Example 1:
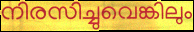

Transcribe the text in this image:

നിരസിച്ചുവെങ്കിലും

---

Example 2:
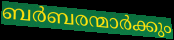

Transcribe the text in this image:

ബർബരന്മാർക്കും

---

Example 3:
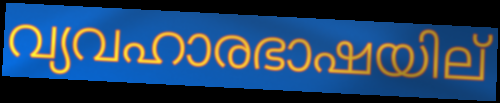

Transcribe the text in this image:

വ്യവഹാരഭാഷയില്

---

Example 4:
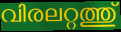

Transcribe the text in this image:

വിരലറ്റത്തു്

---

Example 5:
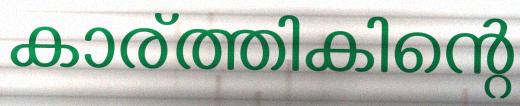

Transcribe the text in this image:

കാര്ത്തികിന്റെ